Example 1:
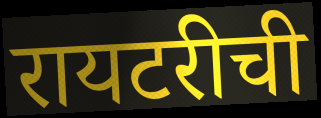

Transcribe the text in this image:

रायटरीची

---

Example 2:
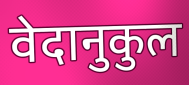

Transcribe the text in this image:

वेदानुकुल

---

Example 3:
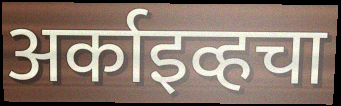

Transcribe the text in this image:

अर्काइव्हचा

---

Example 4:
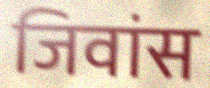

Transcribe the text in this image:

जिवांस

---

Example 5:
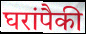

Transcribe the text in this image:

घरांपैकी